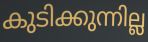
കുടിക്കുന്നില്ല